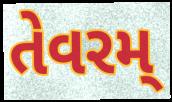
તેવરમ્